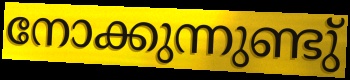
നോക്കുന്നുണ്ടു്